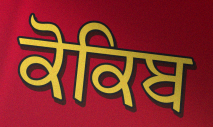
ਕੋਕਿਬ